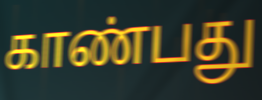
காண்பது